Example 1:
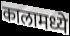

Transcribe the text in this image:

कालामध्ये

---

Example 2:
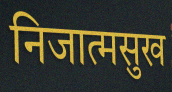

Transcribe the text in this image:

निजात्मसुख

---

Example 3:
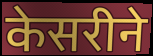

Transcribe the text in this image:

केसरीने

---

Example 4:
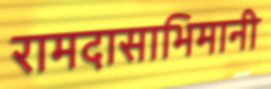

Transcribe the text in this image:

रामदासाभिमानी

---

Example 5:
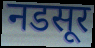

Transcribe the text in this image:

नडसूर